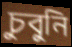
চুবুনি